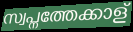
സ്വപ്നത്തേക്കാള്